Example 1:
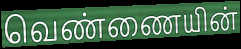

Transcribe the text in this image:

வெண்ணையின்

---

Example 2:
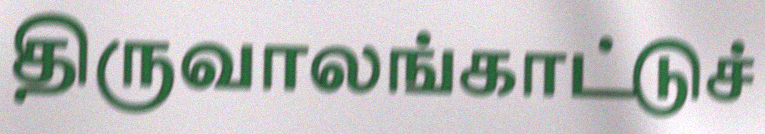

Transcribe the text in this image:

திருவாலங்காட்டுச்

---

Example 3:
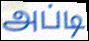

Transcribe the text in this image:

அப்டி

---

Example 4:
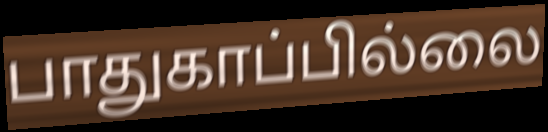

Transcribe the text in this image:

பாதுகாப்பில்லை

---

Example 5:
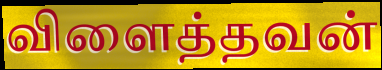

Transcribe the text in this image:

விளைத்தவன்